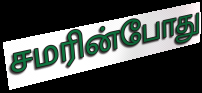
சமரின்போது